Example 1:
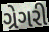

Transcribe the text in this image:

ગ્રેગરી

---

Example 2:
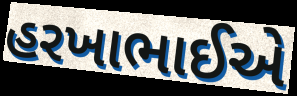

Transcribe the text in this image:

હરખાભાઈએ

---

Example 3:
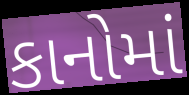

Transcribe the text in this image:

કાનોમાં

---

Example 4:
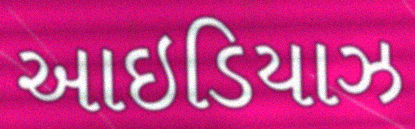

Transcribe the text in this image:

આઇડિયાઝ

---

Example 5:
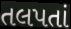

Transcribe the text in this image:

તલપતાં